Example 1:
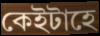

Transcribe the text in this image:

কেইটাহে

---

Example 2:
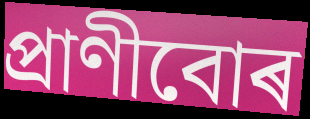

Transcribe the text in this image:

প্ৰাণীবোৰ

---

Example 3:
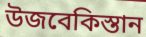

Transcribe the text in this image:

উজবেকিস্তান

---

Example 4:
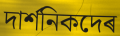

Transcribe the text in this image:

দাৰ্শনিকদেৰ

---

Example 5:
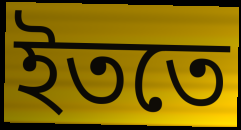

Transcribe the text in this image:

ইততে